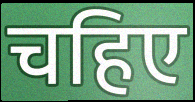
चहिए